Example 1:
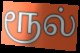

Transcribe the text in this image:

ரூல்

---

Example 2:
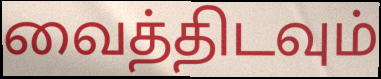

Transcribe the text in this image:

வைத்திடவும்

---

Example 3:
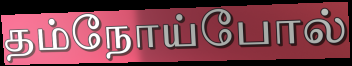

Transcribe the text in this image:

தம்நோய்போல்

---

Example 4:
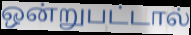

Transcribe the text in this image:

ஒன்றுபட்டால்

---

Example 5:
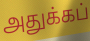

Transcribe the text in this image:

அதுக்கப்